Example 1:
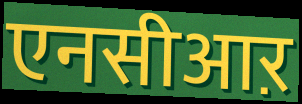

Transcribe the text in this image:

एनसीआऱ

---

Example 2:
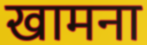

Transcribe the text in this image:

खामना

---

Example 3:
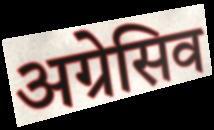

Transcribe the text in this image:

अग्रेसिव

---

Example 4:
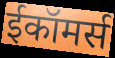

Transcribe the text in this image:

ईकॉमर्स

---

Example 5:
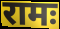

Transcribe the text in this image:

रामः